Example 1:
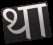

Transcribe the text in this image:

था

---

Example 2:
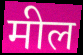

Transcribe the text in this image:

मील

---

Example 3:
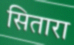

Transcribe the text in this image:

सितारा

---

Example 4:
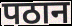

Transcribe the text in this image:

पठान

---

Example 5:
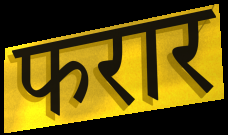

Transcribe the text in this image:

फरार